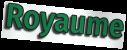
Royaume